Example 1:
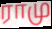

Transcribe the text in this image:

ராமு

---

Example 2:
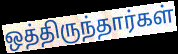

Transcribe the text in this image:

ஒத்திருந்தார்கள்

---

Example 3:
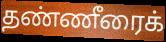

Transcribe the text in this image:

தண்ணீரைக்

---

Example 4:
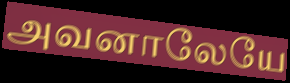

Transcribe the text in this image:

அவனாலேயே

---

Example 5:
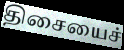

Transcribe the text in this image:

திசையைச்